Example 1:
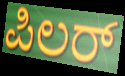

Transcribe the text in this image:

ಪಿಲರ್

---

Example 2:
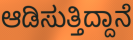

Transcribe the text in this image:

ಆಡಿಸುತ್ತಿದ್ದಾನೆ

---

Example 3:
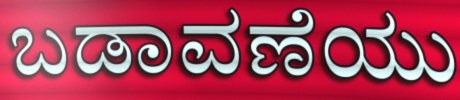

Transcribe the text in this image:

ಬಡಾವಣೆಯು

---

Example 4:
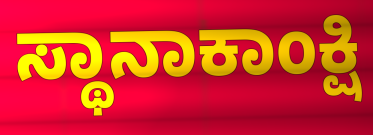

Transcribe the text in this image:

ಸ್ಥಾನಾಕಾಂಕ್ಷಿ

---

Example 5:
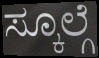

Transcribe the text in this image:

ಸ್ಕೂಲ್ಗೆ